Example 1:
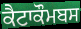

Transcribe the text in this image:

ਕੈਟਾਕੌਮਬਸ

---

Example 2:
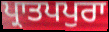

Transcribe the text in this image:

ਪ੍ਰਾਤਪਪੁਰਾ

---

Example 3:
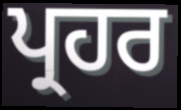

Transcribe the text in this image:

ਪ੍ਰਹਰ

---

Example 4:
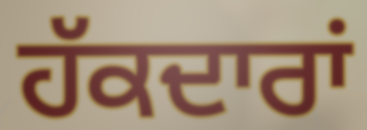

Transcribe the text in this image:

ਹੱਕਦਾਰਾਂ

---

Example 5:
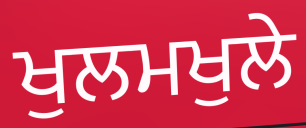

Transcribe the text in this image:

ਖੁਲਮਖੁਲੇ